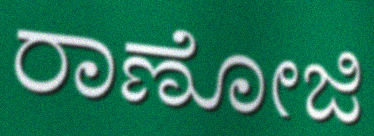
ರಾಣೋಜಿ